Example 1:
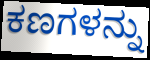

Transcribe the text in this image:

ಕಣಗಳನ್ನು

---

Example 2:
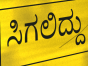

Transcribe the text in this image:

ಸಿಗಲಿದ್ದು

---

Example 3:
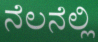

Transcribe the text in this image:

ನೆಲನೆಲ್ಲಿ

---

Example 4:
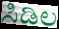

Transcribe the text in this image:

ಸಿಡಿಲ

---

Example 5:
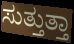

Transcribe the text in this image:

ಸುತ್ತುತ್ತಾ